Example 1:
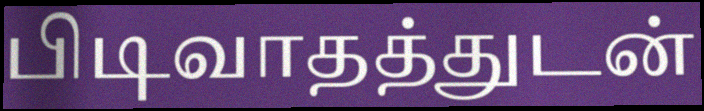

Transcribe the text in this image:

பிடிவாதத்துடன்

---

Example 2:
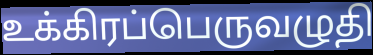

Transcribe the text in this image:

உக்கிரப்பெருவழுதி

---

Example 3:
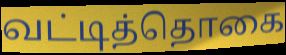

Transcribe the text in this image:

வட்டித்தொகை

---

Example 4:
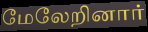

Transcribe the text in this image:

மேலேறினார்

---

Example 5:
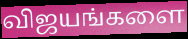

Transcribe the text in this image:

விஜயங்களை